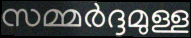
സമ്മർദ്ദമുള്ള